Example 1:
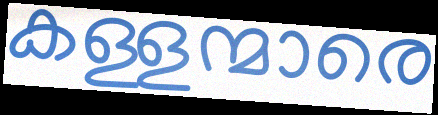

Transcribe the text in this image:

കള്ളന്മാരെ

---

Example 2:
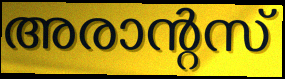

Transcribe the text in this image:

അരാന്റസ്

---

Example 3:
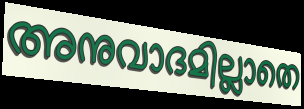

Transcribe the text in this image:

അനുവാദമില്ലാതെ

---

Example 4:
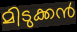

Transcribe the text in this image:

മിടുക്കൻ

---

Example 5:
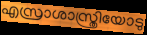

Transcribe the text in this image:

എസ്രാശാസ്ത്രിയോടു